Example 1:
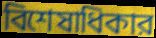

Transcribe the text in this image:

বিশেষাধিকার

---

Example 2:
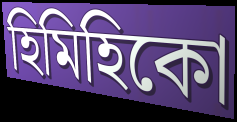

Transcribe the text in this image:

হিমিহিকো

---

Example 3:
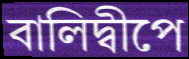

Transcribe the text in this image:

বালিদ্বীপে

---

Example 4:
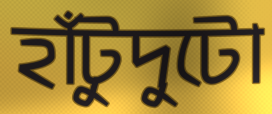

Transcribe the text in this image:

হাঁটুদুটো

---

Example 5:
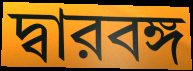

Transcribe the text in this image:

দ্বারবঙ্গ